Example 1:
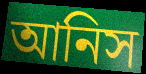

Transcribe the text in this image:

আনিস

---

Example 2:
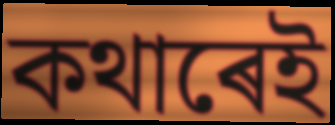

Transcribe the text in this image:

কথাৰেই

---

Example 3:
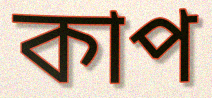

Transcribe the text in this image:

কাপ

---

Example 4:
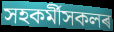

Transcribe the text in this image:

সহকৰ্মীসকলৰ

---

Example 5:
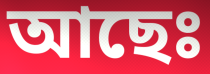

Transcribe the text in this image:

আছেঃ